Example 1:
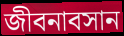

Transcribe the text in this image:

জীবনাবসান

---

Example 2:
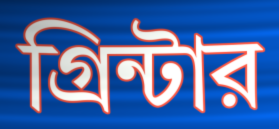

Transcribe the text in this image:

গ্রিন্টার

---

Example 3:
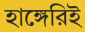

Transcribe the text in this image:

হাঙ্গেরিই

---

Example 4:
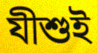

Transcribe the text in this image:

যীশুই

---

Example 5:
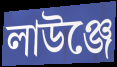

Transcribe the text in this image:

লাউঞ্জে